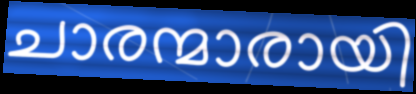
ചാരന്മാരായി